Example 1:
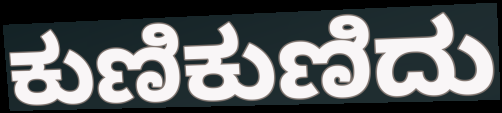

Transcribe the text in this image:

ಕುಣಿಕುಣಿದು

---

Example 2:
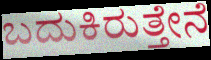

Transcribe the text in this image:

ಬದುಕಿರುತ್ತೇನೆ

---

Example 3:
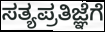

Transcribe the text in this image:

ಸತ್ಯಪ್ರತಿಜ್ಞೆಗೆ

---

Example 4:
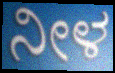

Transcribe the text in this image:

ನೀಳ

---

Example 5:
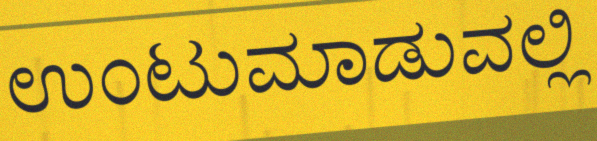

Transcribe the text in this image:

ಉಂಟುಮಾಡುವಲ್ಲಿ